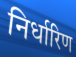
निर्धारिण